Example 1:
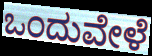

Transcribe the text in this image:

ಒಂದುವೇಳೆ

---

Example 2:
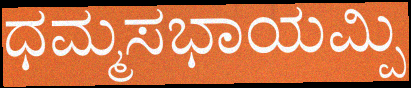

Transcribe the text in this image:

ಧಮ್ಮಸಭಾಯಮ್ಪಿ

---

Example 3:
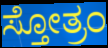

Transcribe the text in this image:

ಸ್ತೋತ್ರಂ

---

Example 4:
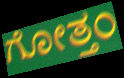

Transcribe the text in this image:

ಗೋತ್ತಂ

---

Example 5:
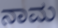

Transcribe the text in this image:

ನಾಮ